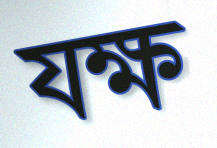
যক্ষ